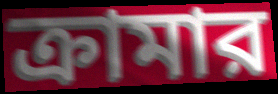
ক্রামার